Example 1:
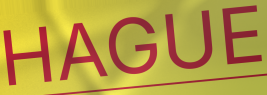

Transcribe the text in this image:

HAGUE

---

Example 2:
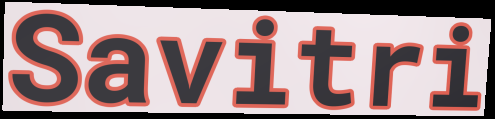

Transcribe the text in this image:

Savitri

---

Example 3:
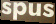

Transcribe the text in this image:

spus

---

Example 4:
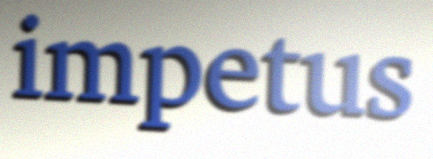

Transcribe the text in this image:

impetus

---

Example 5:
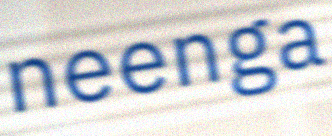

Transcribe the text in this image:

neenga